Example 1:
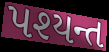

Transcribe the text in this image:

પશ્યન્ત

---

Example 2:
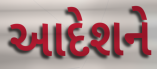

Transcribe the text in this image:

આદેશને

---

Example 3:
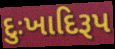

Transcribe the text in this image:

દુઃખાદિરૂપ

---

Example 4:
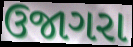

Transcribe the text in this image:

ઉજાગરા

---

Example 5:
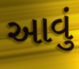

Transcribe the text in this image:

આવું